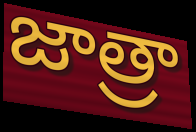
జాత్రా